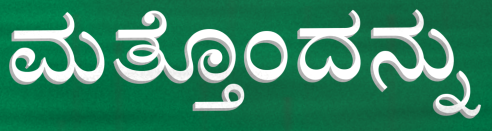
ಮತ್ತೊಂದನ್ನು